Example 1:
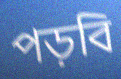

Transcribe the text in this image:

পড়বি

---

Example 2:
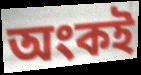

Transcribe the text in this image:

অংকই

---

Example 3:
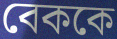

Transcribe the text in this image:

বেককে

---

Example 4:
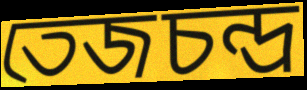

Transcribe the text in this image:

তেজচন্দ্র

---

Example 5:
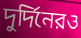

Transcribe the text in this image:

দুর্দিনেরও